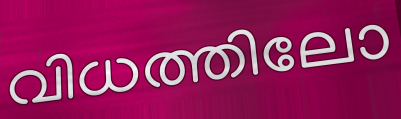
വിധത്തിലോ